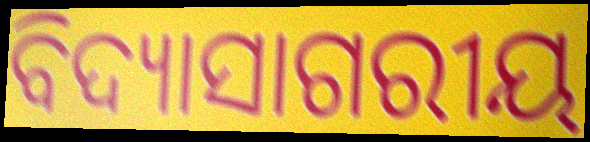
ବିଦ୍ୟାସାଗରୀୟ